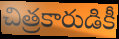
చిత్రకారుడికీ